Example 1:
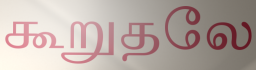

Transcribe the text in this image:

கூறுதலே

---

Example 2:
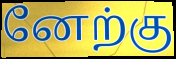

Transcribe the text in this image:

னேற்கு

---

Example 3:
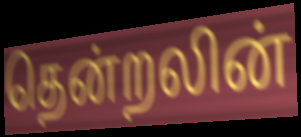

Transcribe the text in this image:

தென்றலின்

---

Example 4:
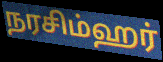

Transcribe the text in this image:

நரசிம்ஹர்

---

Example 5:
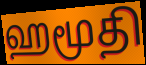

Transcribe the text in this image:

ஹமூதி